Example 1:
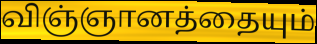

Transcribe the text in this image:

விஞ்ஞானத்தையும்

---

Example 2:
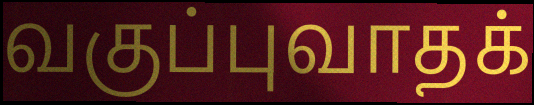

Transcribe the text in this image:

வகுப்புவாதக்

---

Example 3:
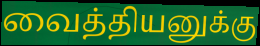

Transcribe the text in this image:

வைத்தியனுக்கு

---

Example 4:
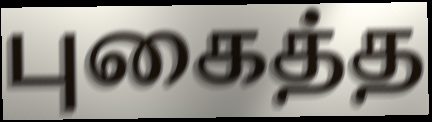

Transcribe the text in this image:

புகைத்த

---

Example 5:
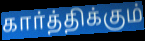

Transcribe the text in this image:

கார்த்திக்கும்